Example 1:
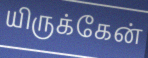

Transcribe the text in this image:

யிருக்கேன்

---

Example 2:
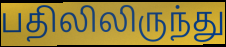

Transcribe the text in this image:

பதிலிலிருந்து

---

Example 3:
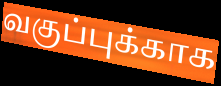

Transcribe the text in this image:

வகுப்புக்காக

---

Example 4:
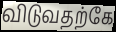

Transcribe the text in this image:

விடுவதற்கே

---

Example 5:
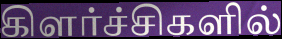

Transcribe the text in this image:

கிளர்ச்சிகளில்